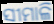
ସୀମାଳି